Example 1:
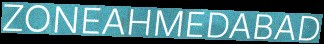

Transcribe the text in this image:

ZONEAHMEDABAD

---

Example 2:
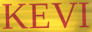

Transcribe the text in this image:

KEVI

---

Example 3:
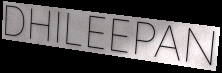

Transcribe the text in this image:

DHILEEPAN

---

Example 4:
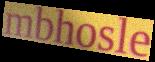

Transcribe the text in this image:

mbhosle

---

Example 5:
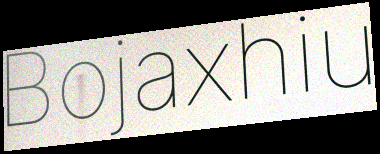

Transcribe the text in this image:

Bojaxhiu